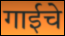
गाईचे